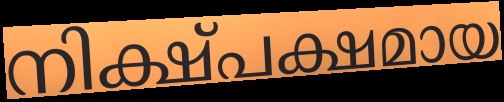
നിക്ഷ്പക്ഷമായ